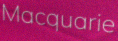
Macquarie